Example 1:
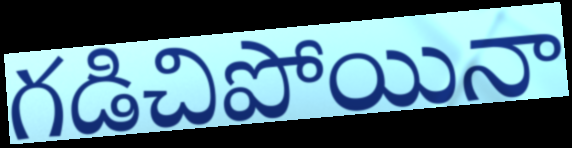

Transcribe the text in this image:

గడిచిపోయినా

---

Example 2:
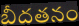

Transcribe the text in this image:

బీదతనం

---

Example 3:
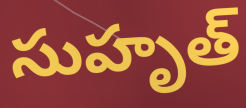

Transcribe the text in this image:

సుహృత్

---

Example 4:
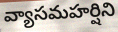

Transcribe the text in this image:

వ్యాసమహర్షిని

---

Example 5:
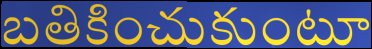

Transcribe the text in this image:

బతికించుకుంటూ